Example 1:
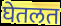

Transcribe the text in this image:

घेतलत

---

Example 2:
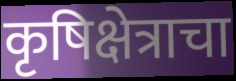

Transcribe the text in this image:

कृषिक्षेत्राचा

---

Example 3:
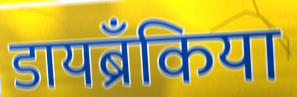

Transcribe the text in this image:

डायब्रँकिया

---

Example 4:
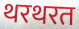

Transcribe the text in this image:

थरथरत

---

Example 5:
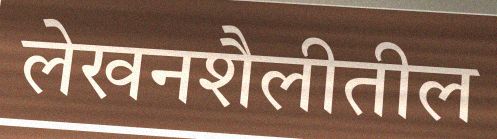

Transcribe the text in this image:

लेखनशैलीतील